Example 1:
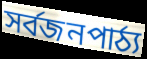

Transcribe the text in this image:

সর্বজনপাঠ্য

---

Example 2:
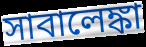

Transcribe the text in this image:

সাবালেঙ্কা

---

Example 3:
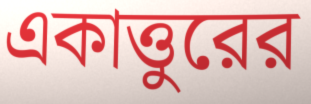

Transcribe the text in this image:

একাত্তুরের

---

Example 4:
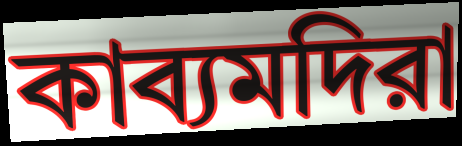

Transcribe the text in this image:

কাব্যমদিরা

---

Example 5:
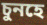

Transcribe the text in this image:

চুনহে